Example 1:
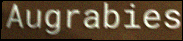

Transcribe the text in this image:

Augrabies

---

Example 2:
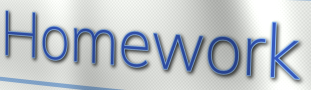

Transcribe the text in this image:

Homework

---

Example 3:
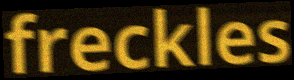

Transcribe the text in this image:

freckles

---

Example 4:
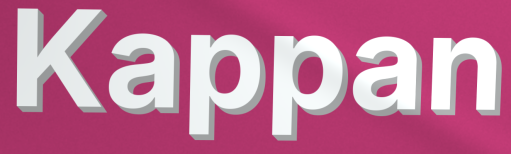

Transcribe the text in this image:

Kappan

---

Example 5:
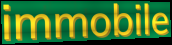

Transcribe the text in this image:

immobile